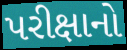
પરીક્ષાનો